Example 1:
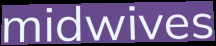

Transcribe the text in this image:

midwives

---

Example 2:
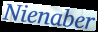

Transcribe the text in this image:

Nienaber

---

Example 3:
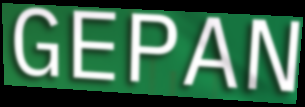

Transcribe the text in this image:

GEPAN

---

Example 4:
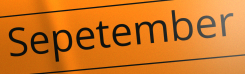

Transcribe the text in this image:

Sepetember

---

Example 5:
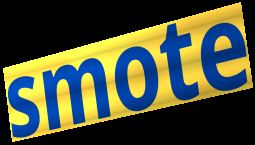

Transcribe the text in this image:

smote